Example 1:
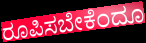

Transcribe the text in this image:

ರೂಪಿಸಬೇಕೆಂದೂ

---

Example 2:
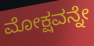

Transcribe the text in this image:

ಮೋಕ್ಷವನ್ನೇ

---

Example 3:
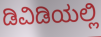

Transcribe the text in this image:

ಡಿವಿಡಿಯಲ್ಲಿ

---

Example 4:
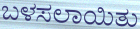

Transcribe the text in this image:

ಬಳಸಲಾಯಿತು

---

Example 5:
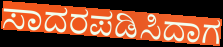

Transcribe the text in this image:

ಸಾದರಪಡಿಸಿದಾಗ